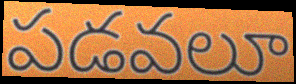
పడవలూ